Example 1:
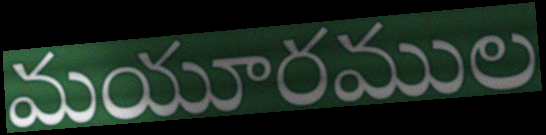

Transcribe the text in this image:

మయూరముల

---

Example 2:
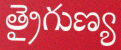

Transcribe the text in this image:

త్రైగుణ్య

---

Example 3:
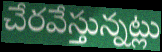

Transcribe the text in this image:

చేరవేస్తున్నట్లు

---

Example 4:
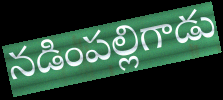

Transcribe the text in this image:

నడింపల్లిగాడు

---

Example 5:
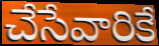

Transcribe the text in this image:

చేసేవారికే